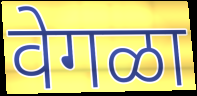
वेगळा